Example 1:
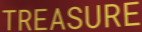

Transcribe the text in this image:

TREASURE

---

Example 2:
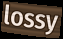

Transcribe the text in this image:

lossy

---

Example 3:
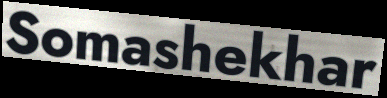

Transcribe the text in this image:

Somashekhar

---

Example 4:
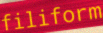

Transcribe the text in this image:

filiform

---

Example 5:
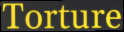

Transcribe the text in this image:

Torture